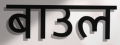
बाउल